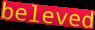
beleved